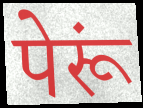
पेरूं